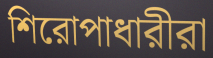
শিরোপাধারীরা